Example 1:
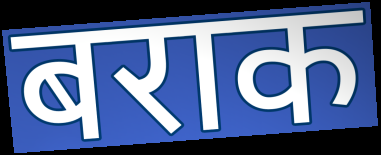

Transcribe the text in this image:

बराक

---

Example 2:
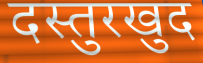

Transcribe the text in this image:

दस्तुरखुद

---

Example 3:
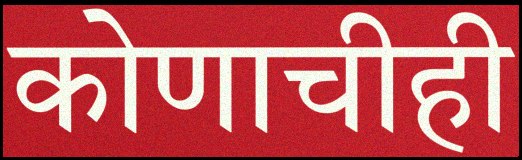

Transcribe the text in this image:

कोणाचीही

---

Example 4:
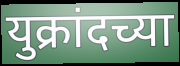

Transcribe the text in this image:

युक्रांदच्या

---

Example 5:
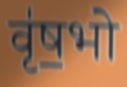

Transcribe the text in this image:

वृ॑ष॒भो